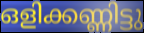
ഒളിക്കണ്ണിട്ടു